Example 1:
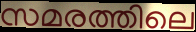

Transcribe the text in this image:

സമരത്തിലെ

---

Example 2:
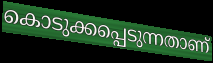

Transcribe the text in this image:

കൊടുക്കപ്പെടുന്നതാണ്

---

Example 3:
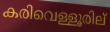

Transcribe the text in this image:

കരിവെള്ളൂരില്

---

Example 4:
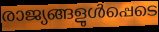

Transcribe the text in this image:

രാജ്യങ്ങളുൾപ്പെടെ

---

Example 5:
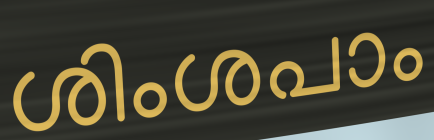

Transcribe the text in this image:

ശിംശപാം